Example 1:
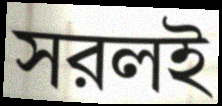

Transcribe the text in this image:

সরলই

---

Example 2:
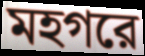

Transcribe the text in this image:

মহগরে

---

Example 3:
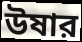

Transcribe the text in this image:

উষার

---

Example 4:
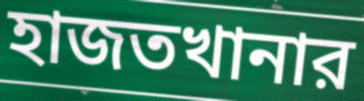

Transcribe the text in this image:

হাজতখানার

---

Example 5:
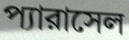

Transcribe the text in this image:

প্যারাসেল